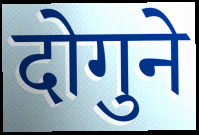
दोगुने